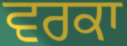
ਵਰਕਾ